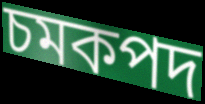
চমকপদ